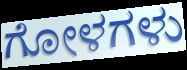
ಗೋಳಗಳು